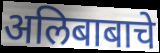
अलिबाबाचे